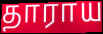
தாராய